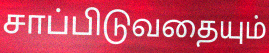
சாப்பிடுவதையும்